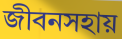
জীবনসহায়